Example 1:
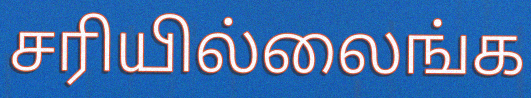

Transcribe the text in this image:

சரியில்லைங்க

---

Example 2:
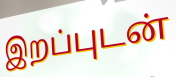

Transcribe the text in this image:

இறப்புடன்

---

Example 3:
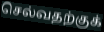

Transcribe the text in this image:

செல்வதற்குக்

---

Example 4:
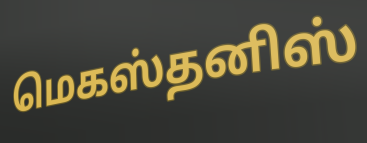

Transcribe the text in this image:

மெகஸ்தனிஸ்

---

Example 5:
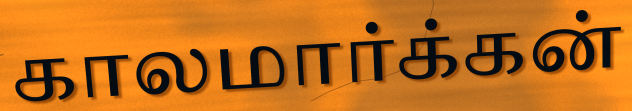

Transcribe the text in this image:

காலமார்க்கன்